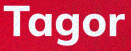
Tagor